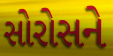
સોરોસને